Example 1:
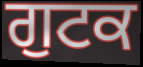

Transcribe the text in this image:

ਗੁਟਕ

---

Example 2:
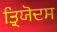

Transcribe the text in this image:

ਤ੍ਰਿਯੋਦਸ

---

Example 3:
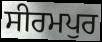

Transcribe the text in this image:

ਸੀਰਮਪੁਰ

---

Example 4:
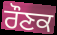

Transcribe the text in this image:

ਰੌਣਕ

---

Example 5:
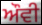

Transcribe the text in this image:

ਔਵੀ